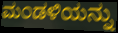
ಮಂಡಳಿಯನ್ನು